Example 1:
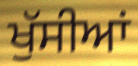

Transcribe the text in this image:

ਖੁੱਸੀਆਂ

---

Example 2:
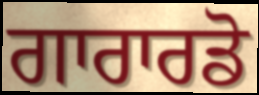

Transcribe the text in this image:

ਗਾਰਾਰਡੋ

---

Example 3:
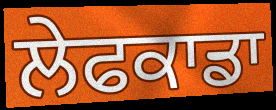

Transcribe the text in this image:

ਲੇਫਕਾਡਾ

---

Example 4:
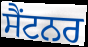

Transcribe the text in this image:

ਸੈਂਟਨਰ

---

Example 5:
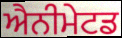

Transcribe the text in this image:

ਐਨੀਮੇਟਡ